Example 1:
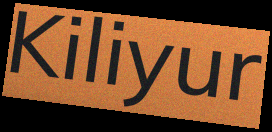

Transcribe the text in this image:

Kiliyur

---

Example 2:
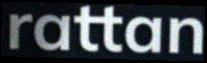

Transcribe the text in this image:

rattan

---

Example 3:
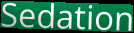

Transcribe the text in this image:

Sedation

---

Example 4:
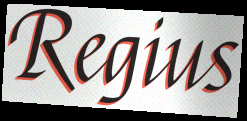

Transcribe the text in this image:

Regius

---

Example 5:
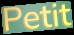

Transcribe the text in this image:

Petit